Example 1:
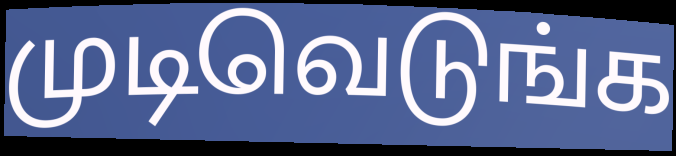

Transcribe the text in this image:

முடிவெடுங்க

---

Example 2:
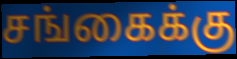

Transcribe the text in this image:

சங்கைக்கு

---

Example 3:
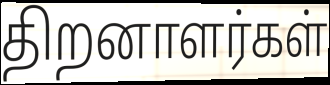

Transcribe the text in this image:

திறனாளர்கள்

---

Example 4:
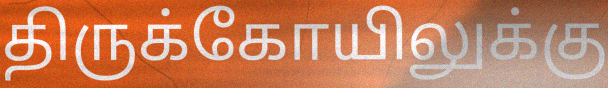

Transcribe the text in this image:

திருக்கோயிலுக்கு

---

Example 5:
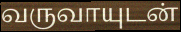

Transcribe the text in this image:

வருவாயுடன்